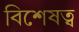
বিশেষত্ব